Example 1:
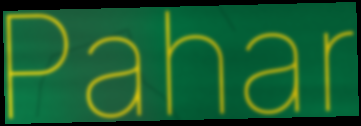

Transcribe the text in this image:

Pahar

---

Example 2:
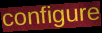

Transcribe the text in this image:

configure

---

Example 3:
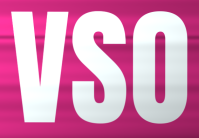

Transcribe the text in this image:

VSO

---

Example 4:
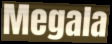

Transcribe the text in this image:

Megala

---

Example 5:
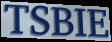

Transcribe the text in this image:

TSBIE